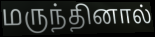
மருந்தினால்